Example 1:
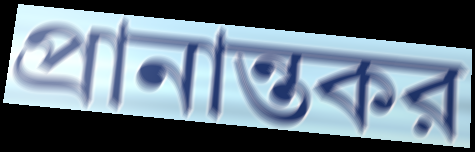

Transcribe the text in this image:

প্রানান্তকর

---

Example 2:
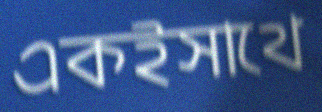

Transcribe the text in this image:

একইসাথে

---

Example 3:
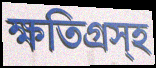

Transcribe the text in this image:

ক্ষতিগ্রস্হ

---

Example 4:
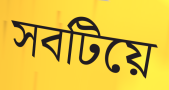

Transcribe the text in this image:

সবটিয়ে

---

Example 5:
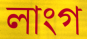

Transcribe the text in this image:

লাংগ